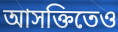
আসক্তিতেও